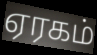
ஏரகம்